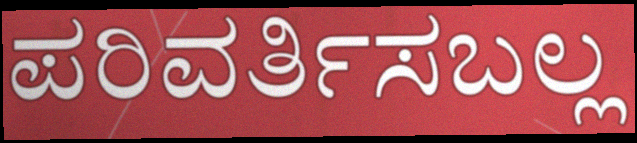
ಪರಿವರ್ತಿಸಬಲ್ಲ